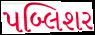
પબ્લિશર